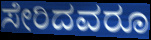
ಸೇರಿದವರೂ